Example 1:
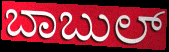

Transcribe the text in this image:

ಬಾಬುಲ್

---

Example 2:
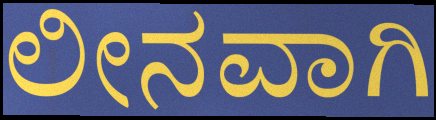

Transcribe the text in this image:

ಲೀನವಾಗಿ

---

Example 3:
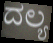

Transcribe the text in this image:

ದಲ್ಯ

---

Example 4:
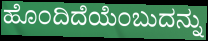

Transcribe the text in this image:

ಹೊಂದಿದೆಯೆಂಬುದನ್ನು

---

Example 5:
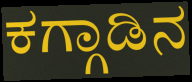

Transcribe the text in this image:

ಕಗ್ಗಾಡಿನ